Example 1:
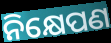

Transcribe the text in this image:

ନିକ୍ଷେପଣ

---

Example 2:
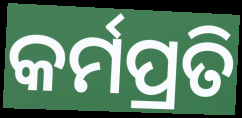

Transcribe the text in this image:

କର୍ମପ୍ରତି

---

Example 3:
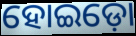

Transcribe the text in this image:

ହୋଇଡ଼ୋ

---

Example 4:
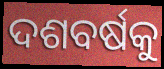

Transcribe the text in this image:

ଦଶବର୍ଷକୁ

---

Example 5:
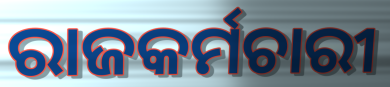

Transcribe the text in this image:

ରାଜକର୍ମଚାରୀ